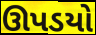
ઊપડયો